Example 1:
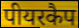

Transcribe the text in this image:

पीयरकैप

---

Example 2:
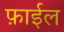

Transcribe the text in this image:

फ़ाईल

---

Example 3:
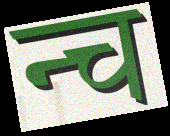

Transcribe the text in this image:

न्च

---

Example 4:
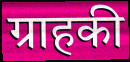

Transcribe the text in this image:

ग्राहकी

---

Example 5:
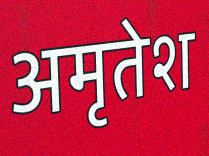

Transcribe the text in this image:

अमृतेश